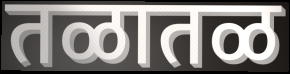
तळातळ